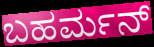
ಬಹರ್ಮನ್